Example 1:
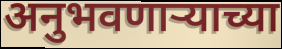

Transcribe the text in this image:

अनुभवणार्‍याच्या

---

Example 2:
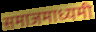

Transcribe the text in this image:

समाजमाध्यमी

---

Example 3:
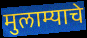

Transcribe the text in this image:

मुलाम्याचे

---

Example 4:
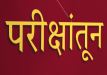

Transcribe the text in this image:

परीक्षांतून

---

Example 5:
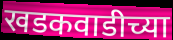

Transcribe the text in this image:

खडकवाडीच्या